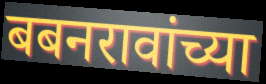
बबनरावांच्या